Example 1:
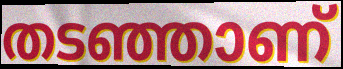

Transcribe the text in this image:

തടഞ്ഞാണ്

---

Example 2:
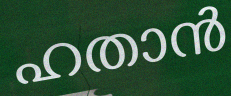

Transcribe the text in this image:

ഹതാൻ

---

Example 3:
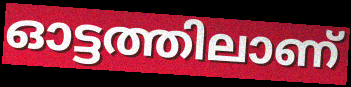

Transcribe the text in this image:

ഓട്ടത്തിലാണ്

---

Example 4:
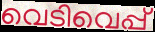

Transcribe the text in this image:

വെടിവെപ്പ്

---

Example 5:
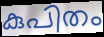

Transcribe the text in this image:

കുപിതം